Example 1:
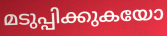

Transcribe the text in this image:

മടുപ്പിക്കുകയോ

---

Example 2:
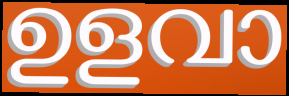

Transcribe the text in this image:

ഉളവാ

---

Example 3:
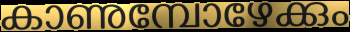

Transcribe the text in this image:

കാണുമ്പോഴേക്കും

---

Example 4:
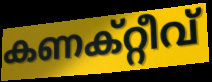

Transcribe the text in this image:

കണക്റ്റീവ്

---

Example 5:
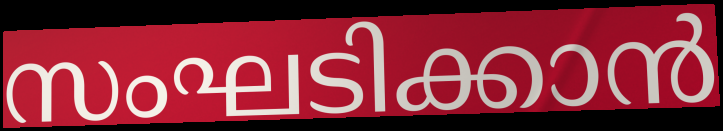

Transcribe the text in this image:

സംഘടിക്കാൻ